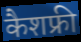
कैशफ्री